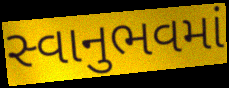
સ્વાનુભવમાં